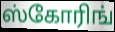
ஸ்கோரிங்